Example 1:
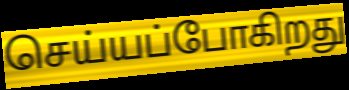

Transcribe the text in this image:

செய்யப்போகிறது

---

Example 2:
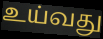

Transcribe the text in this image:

உய்வது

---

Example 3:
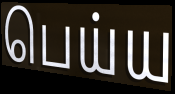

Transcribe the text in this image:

பெய்ய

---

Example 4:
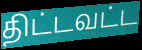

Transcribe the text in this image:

திட்டவட்ட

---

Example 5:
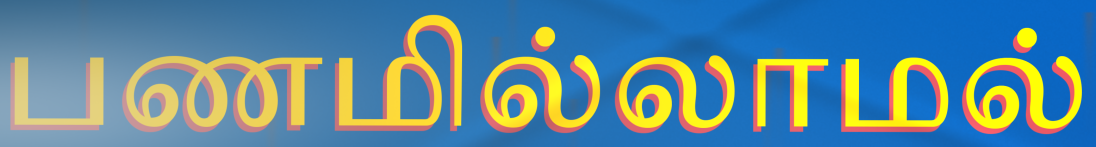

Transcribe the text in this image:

பணமில்லாமல்